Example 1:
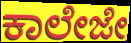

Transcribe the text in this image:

ಕಾಲೇಜೇ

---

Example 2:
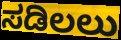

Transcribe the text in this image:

ಸಡಿಲಲು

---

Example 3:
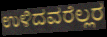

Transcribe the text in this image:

ಉಳಿದವರೆಲ್ಲರ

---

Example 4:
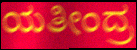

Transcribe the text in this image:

ಯತೀಂದ್ರ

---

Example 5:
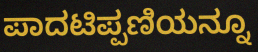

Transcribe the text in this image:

ಪಾದಟಿಪ್ಪಣಿಯನ್ನೂ